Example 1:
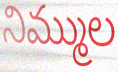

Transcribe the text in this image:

నిమ్ముల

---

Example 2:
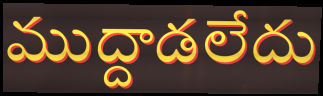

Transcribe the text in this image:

ముద్దాడలేదు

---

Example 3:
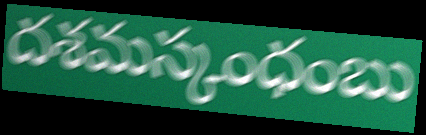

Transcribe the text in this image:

దశమస్కంధంబు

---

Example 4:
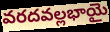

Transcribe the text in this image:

వరదవల్లభాయై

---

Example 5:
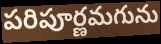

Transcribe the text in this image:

పరిపూర్ణమగును